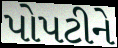
પોપટીને